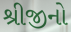
શ્રીજીનો